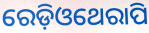
ରେଡ଼ିଓଥେରାପି